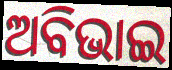
ଅବିଭାଇ